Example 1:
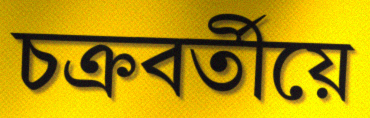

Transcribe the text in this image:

চক্ৰবৰ্তীয়ে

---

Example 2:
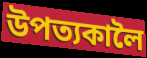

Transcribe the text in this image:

উপত্যকালৈ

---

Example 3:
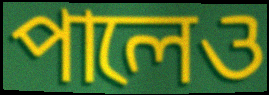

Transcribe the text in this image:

পালেও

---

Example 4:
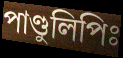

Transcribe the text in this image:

পাণ্ডুলিপিঃ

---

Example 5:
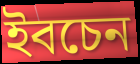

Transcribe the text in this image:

ইবচেন